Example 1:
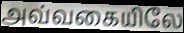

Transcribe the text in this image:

அவ்வகையிலே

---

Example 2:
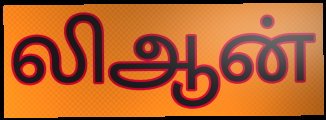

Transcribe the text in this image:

லிஆன்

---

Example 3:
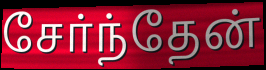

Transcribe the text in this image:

சேர்ந்தேன்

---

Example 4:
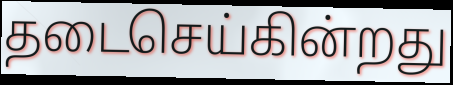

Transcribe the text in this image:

தடைசெய்கின்றது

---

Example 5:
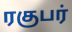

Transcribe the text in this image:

ரகுபர்